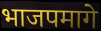
भाजपमागे